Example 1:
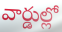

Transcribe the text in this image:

వార్డుల్లో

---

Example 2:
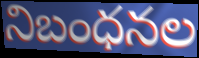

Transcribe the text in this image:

నిబంధనల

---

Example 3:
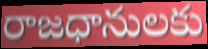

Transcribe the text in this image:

రాజధానులకు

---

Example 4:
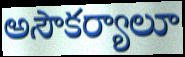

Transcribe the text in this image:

అసౌకర్యాలూ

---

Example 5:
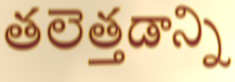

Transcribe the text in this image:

తలెత్తడాన్ని